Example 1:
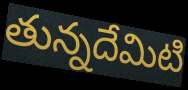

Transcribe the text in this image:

తున్నదేమిటి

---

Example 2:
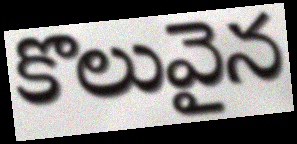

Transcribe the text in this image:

కొలువైన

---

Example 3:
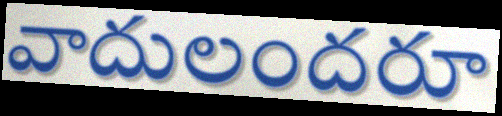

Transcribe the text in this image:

వాదులందరూ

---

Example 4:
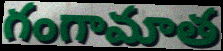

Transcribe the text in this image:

గంగామాత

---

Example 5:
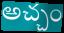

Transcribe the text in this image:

అచ్చం